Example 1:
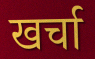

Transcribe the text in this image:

खर्चा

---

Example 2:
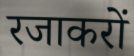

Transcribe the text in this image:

रजाकरों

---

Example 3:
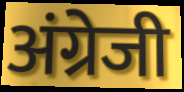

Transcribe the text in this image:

अंग्रेजी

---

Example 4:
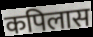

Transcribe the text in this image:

कपिलास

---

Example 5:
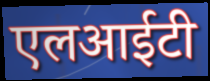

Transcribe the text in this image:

एलआईटी